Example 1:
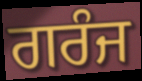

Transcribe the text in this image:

ਗਰੰਜ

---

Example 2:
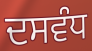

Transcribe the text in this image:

ਦਸਵੰਧ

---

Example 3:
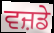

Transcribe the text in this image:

ਵਜ਼ਡੇ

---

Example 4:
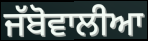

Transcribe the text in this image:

ਜੱਬੋਵਾਲੀਆ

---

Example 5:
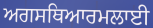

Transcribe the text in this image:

ਅਗਸਥਿਆਰਮਲਾਈ